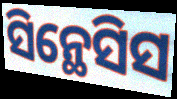
ସିନ୍ଥେସିସ